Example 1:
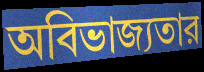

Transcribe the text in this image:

অবিভাজ্যতার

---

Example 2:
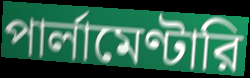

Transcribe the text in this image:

পার্লামেণ্টারি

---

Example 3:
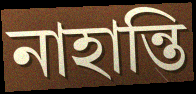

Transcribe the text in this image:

নাহান্তি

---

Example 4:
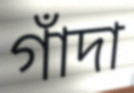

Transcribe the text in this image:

গাঁদা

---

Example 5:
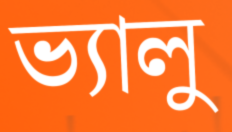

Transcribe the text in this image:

ভ্যালু